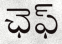
ఛెఫ్